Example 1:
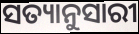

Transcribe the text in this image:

ସତ୍ୟାନୁସାରୀ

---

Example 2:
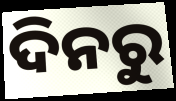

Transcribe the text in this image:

ଦିନରୁ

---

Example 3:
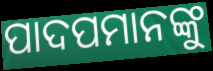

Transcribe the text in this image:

ପାଦପମାନଙ୍କୁ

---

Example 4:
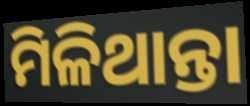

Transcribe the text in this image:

ମିଳିଥାନ୍ତା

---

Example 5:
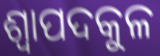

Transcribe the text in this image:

ଶ୍ୱାପଦକୁଳ